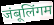
जंबूलिंगम